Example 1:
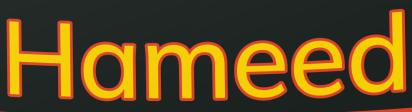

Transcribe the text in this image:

Hameed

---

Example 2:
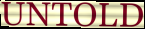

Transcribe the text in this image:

UNTOLD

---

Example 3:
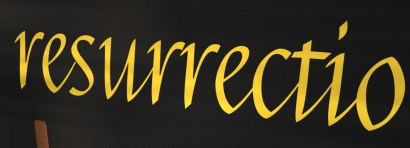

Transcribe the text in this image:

resurrectio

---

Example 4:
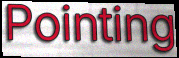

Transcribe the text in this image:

Pointing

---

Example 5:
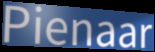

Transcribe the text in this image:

Pienaar